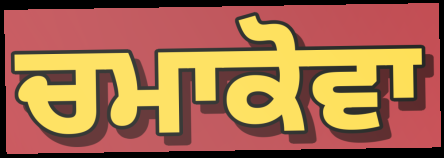
ਚਮਾਕੋਵਾ